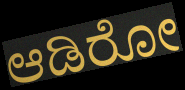
ಆಡಿರೋ